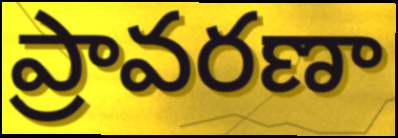
ప్రావరణా